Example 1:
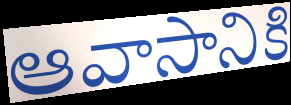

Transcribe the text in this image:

ఆవాసానికి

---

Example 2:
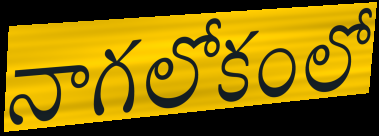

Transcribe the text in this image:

నాగలోకంలో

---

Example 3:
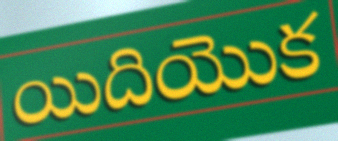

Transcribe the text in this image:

యిదియొక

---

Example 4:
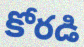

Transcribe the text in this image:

కోరడి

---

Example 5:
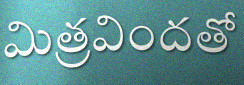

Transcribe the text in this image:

మిత్రవిందతో